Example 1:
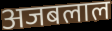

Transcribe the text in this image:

अजबलाल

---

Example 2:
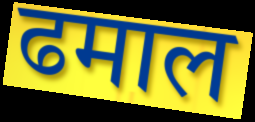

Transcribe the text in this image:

ढमाल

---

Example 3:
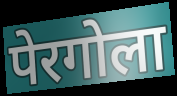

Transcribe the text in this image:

पेरगोला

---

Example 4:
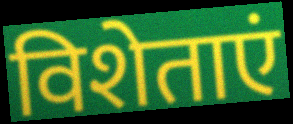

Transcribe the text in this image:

विशेताएं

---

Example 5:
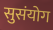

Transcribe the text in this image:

सुसंयोग